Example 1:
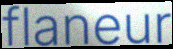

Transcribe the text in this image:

flaneur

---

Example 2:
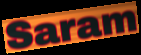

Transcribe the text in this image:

Saram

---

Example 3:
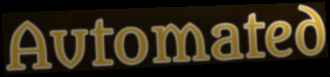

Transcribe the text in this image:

Automated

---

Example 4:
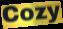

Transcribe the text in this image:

Cozy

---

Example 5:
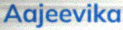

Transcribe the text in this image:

Aajeevika